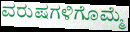
ವರುಷಗಳಿಗೊಮ್ಮೆ